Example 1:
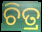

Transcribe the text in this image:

ଚିତ୍ର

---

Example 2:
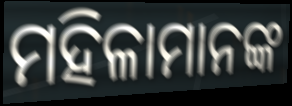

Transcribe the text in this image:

ମହିଳାମାନଙ୍କ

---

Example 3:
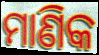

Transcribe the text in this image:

ମାଣିକ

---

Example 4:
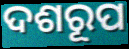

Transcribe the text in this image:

ଦଶରୂପ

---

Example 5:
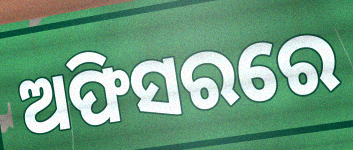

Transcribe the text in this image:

ଅଫିସରରେ